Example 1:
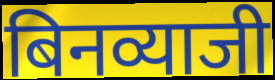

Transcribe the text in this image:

बिनव्याजी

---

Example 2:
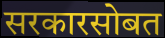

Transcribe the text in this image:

सरकारसोबत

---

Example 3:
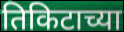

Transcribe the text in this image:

तिकिटाच्या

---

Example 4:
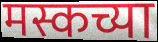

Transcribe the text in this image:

मस्कच्या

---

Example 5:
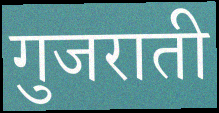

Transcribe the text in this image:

गुजराती